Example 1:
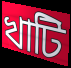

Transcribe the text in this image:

খাটি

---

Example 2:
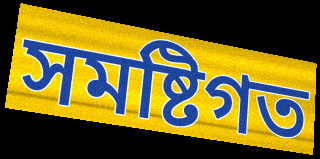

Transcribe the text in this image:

সমষ্টিগত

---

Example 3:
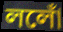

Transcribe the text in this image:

ললোঁ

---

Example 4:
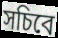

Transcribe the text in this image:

সচিবে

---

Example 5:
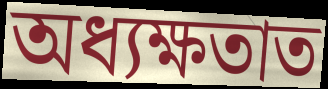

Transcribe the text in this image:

অধ্যক্ষতাত